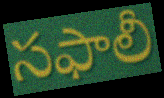
సఫాలీ